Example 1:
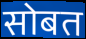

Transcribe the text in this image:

सोबत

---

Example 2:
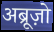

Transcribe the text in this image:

अब्रूज़ो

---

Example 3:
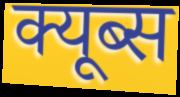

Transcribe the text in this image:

क्यूब्स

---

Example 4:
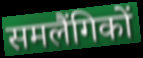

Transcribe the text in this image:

समलैंगिकों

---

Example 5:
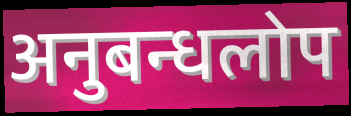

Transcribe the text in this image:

अनुबन्धलोप